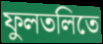
ফুলতলিতে